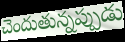
చెందుతున్నప్పుడు